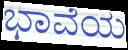
ಭಾವೆಯ